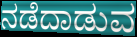
ನಡೆದಾಡುವ